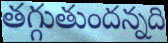
తగ్గుతుందన్నది